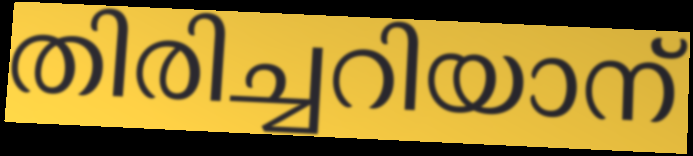
തിരിച്ചറിയാന്